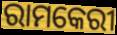
ରାମକେରୀ